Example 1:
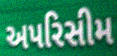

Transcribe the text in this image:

અપરિસીમ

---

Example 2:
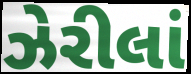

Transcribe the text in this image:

ઝેરીલાં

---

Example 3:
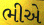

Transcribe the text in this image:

ભીએ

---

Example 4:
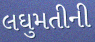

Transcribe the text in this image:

લઘુમતીની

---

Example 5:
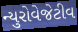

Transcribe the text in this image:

ન્યુરોવેજેટીવ